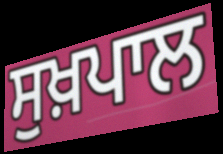
ਸੁਖ਼ਪਾਲ